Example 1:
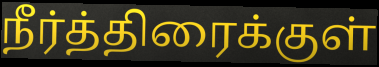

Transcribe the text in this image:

நீர்த்திரைக்குள்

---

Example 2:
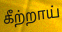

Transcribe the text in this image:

கீற்றாய்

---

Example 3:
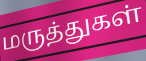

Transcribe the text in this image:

மருத்துகள்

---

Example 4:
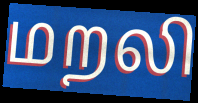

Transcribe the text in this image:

மறலி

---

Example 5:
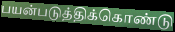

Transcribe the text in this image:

பயன்படுத்திக்கொண்டு